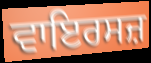
ਵਾਇਰਸਜ਼